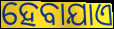
ହେବାଯାଏ